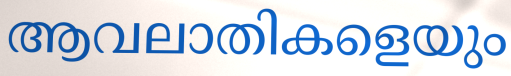
ആവലാതികളെയും